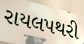
રાયલપથરી